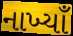
નાખ્યાઁ